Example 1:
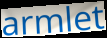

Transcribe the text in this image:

armlet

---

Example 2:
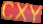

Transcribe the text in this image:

CXY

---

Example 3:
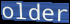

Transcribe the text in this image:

older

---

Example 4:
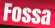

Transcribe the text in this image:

Fossa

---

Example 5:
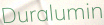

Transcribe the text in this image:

Duralumin